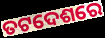
ତଟଦେଶରେ